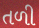
તળી